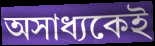
অসাধ্যকেই